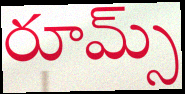
రూమ్స్